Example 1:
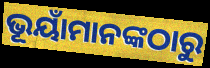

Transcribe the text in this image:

ଭୂୟାଁମାନଙ୍କଠାରୁ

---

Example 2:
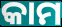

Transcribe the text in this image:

କାମ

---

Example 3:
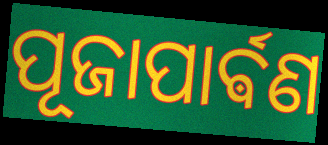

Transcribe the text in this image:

ପୂଜାପାର୍ଵଣ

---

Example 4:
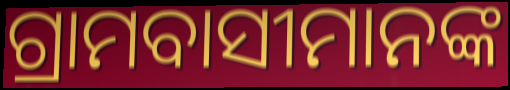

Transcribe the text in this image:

ଗ୍ରାମବାସୀମାନଙ୍କ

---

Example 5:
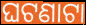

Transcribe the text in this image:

ଘଟଣାଟା